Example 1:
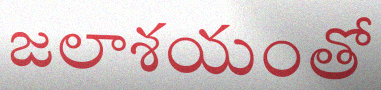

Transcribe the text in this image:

జలాశయంతో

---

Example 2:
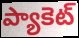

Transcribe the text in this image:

ప్యాకెట్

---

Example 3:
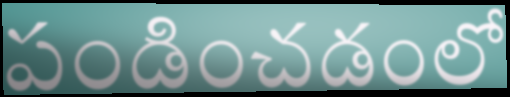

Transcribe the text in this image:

పండించడంలో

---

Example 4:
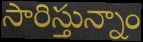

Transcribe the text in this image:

సారిస్తున్నాం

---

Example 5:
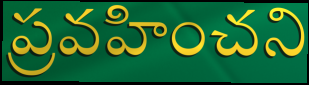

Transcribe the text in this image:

ప్రవహించని